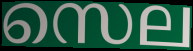
സെല